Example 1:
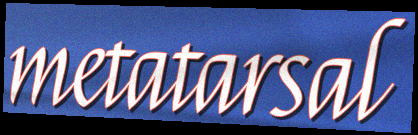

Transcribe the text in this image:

metatarsal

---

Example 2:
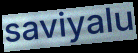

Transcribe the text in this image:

saviyalu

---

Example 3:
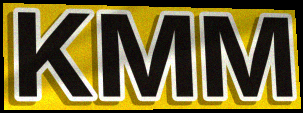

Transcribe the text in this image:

KMM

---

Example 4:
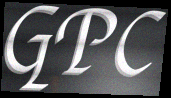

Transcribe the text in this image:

GPC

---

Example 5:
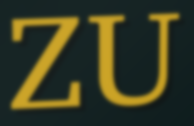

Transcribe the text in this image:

ZU